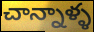
చాన్నాళ్ళ